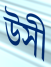
উসী